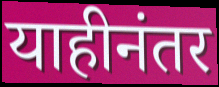
याहीनंतर